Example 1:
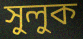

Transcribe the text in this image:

সুলুক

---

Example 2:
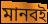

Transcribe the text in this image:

মানবই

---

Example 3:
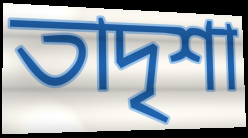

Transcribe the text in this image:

তাদৃশা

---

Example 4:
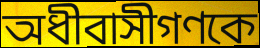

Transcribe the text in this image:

অধীবাসীগণকে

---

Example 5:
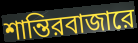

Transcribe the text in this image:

শান্তিরবাজারে